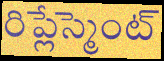
రిప్లేస్మెంట్